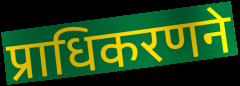
प्राधिकरणने